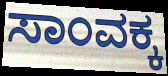
ಸಾಂವಕ್ಕ